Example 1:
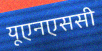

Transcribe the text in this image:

यूएनएससी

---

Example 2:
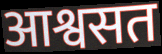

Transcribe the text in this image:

आश्वसत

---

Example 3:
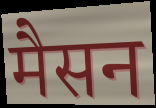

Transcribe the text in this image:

मैसन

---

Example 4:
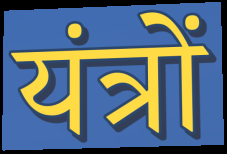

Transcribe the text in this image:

यंत्रों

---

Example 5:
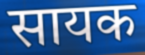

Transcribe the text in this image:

सायक